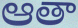
ఆతా